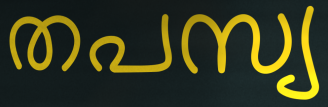
തപസ്യ